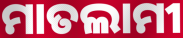
ମାତଲାମୀ